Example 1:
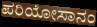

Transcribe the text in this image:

ಪರಿಯೋಸಾನಂ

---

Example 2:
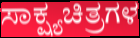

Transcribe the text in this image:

ಸಾಕ್ಷ್ಯಚಿತ್ರಗಳ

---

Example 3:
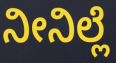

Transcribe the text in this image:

ನೀನಿಲ್ಲೆ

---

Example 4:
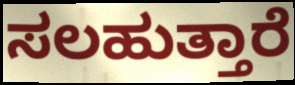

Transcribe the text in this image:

ಸಲಹುತ್ತಾರೆ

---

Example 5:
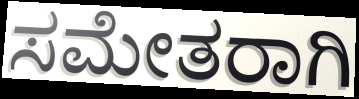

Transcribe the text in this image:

ಸಮೇತರಾಗಿ